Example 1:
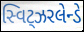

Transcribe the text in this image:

સ્વિટ્ઝરલેન્ડે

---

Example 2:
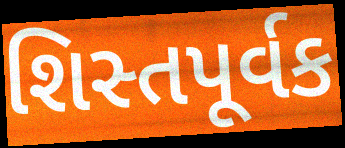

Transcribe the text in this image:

શિસ્તપૂર્વક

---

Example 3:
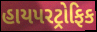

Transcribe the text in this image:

હાયપરટ્રોફિક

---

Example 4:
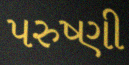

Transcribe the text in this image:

પરુષ્ણી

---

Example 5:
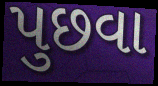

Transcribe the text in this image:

પુછવા